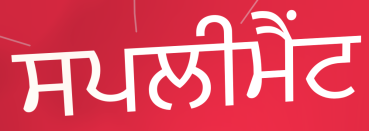
ਸਪਲੀਮੈਂਟ